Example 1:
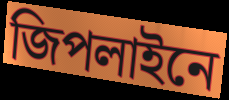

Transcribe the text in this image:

জিপলাইনে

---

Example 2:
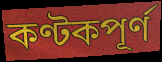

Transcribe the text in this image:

কণ্টকপূর্ণ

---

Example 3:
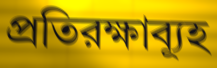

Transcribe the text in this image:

প্রতিরক্ষাব্যূহ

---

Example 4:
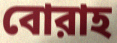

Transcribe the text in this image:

বোরাহ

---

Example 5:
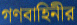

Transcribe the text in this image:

গণবাহিনীর